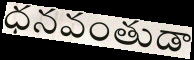
ధనవంతుడా